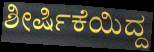
ಶೀರ್ಷಿಕೆಯಿದ್ದ